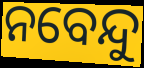
ନବେନ୍ଦୁ